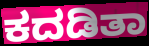
ಕದಡಿತಾ